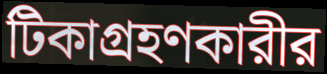
টিকাগ্রহণকারীর